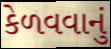
કેળવવાનું